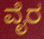
ವೈರ